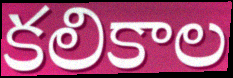
కలికాల